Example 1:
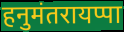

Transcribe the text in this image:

हनुमंतरायप्पा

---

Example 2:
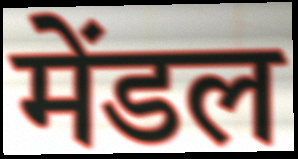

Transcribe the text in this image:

मेंडल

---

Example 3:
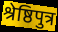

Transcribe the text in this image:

श्रेष्ठिपुत्र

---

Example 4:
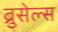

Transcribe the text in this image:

ब्रुसेल्स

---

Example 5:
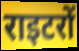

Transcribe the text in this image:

राइटरों